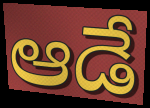
ఆడే